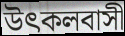
উৎকলবাসী